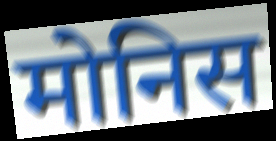
मोनिस